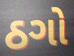
ઠગો